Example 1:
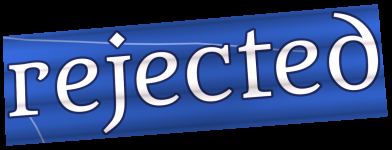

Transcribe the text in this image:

rejected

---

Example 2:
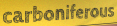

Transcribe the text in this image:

carboniferous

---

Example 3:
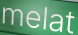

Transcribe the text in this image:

melat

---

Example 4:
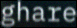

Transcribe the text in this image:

ghare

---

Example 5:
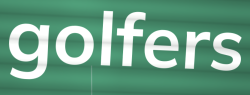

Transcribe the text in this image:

golfers